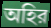
অহির